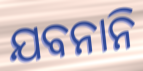
ଯବନାନି